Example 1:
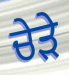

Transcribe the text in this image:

ਚੇੜੇ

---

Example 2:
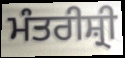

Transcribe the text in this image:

ਮੰਤਰੀਸ਼੍ਰੀ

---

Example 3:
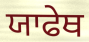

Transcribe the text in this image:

ਯਾਫੇਥ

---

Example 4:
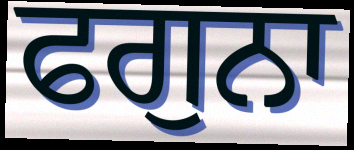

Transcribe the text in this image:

ਫਗੁਨਾ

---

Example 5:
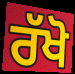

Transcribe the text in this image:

ਰੱਖੋ